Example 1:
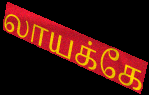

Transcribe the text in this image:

லாயக்கே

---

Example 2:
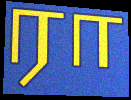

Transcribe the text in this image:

ரா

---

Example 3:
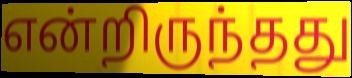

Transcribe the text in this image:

என்றிருந்தது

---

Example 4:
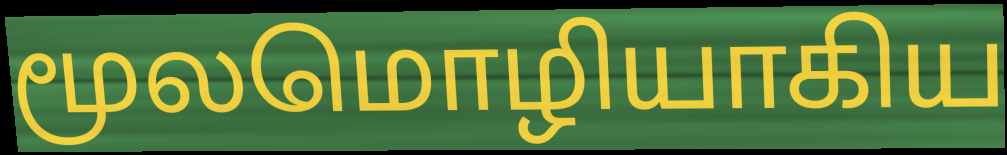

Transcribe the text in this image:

மூலமொழியாகிய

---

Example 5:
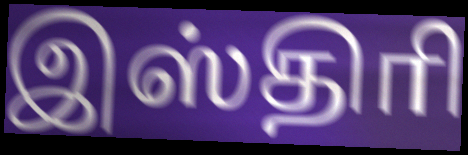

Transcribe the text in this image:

இஸ்திரி